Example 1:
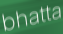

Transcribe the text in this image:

bhatta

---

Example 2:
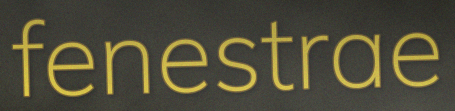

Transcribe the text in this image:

fenestrae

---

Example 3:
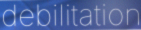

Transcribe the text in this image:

debilitation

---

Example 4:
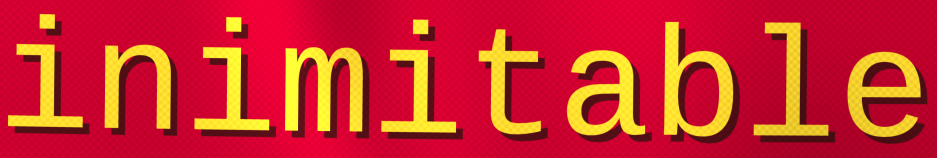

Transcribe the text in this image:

inimitable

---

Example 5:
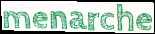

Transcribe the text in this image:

menarche